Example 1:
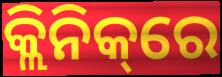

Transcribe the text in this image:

କ୍ଲିନିକ୍‌ରେ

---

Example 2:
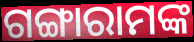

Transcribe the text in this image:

ଗଙ୍ଗାରାମଙ୍କ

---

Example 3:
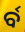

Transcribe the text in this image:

ର୍ବ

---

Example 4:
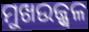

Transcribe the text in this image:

ମୁଖଉଜ୍ଜ୍ୱଳ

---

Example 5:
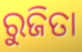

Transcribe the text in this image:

ରୁଜିତା